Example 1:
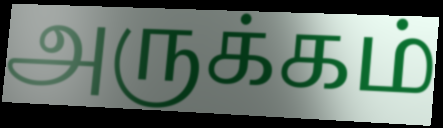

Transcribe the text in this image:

அருக்கம்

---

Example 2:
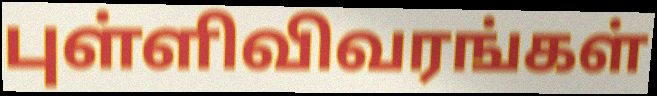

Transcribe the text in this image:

புள்ளிவிவரங்கள்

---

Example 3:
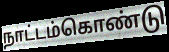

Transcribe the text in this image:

நாட்டம்கொண்டு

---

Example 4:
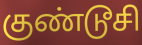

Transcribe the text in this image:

குண்டூசி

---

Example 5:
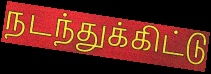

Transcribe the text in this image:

நடந்துக்கிட்டு